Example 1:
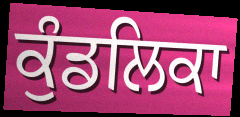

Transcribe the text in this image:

ਕੁੰਡਲਿਕਾ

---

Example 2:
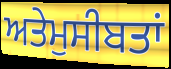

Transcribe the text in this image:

ਅਤੇਮੁਸੀਬਤਾਂ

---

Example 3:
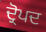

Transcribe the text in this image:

ਦ੍ਰੋਪਦ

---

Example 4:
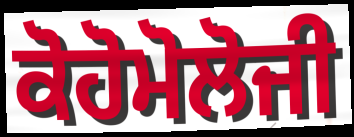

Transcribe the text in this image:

ਕੋਹੋਮੋਲੋਜੀ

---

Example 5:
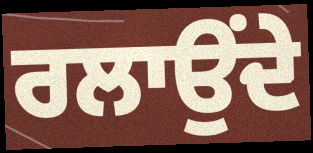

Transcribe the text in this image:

ਰਲਾਉਂਦੇ